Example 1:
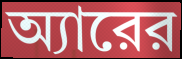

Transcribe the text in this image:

অ্যারের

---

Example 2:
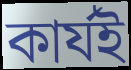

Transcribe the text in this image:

কার্যই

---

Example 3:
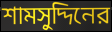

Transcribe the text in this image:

শামসুদ্দিনের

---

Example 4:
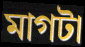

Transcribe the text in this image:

মাগটা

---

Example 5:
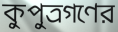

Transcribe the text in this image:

কুপুত্রগণের